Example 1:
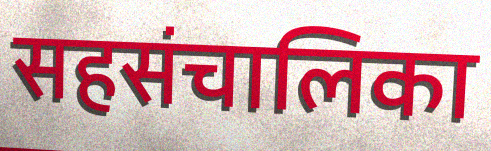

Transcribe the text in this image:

सहसंचालिका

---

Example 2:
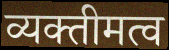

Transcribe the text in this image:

व्यक्तीमत्व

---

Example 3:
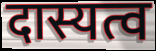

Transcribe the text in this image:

दास्यत्व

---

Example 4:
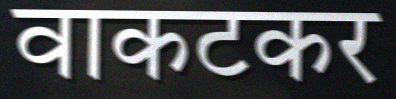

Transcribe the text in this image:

वाकटकर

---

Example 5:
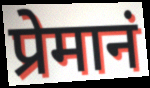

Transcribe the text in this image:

प्रेमानं